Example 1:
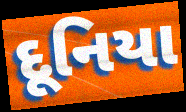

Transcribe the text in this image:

દૂનિયા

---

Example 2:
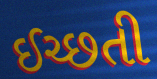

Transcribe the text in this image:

ઈચ્છતી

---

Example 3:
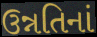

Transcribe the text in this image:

ઉન્નતિનાં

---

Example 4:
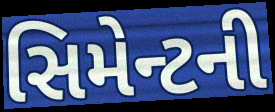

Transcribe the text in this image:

સિમેન્ટની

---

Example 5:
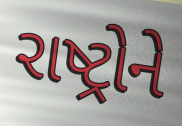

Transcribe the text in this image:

રાષ્ટ્રોને